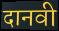
दानवी